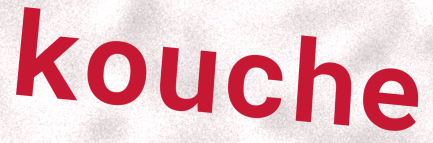
kouche